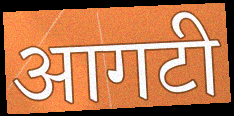
आगटी